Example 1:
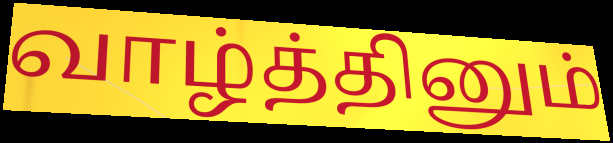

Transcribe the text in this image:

வாழ்த்தினும்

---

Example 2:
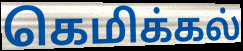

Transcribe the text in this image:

கெமிக்கல்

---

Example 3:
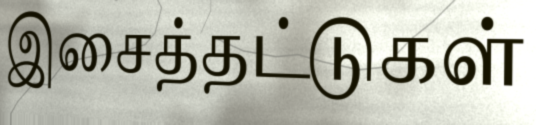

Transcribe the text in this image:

இசைத்தட்டுகள்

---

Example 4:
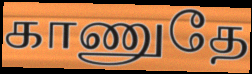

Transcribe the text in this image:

காணுதே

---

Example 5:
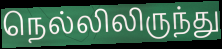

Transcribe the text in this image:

நெல்லிலிருந்து